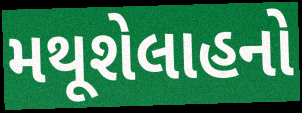
મથૂશેલાહનો